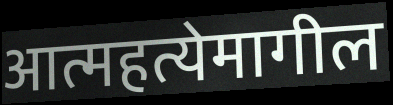
आत्महत्येमागील